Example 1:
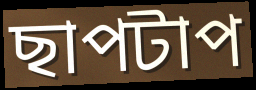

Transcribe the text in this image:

ছাপটাপ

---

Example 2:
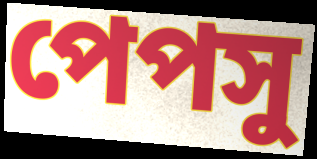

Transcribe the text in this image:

পেপসু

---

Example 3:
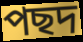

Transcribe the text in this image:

পছদ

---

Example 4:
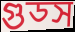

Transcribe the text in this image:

গুড্স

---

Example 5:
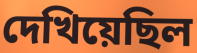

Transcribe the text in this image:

দেখিয়েছিল